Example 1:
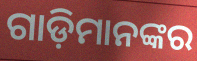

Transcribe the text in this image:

ଗାଡ଼ିମାନଙ୍କର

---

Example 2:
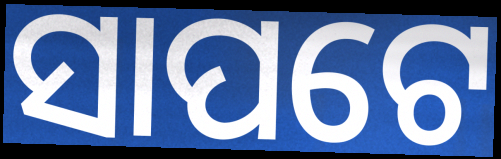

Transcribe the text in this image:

ସାପଟେ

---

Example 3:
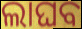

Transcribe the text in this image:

ଲାଘବ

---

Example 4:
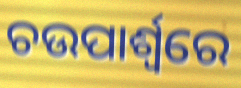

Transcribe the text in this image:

ଚଉପାର୍ଶ୍ୱରେ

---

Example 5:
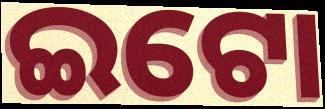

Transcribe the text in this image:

ଇଟୋ